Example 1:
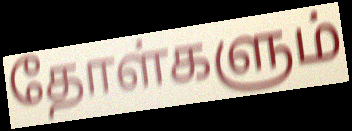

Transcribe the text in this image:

தோள்களும்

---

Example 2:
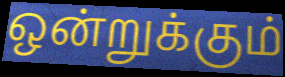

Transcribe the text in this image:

ஒன்றுக்கும்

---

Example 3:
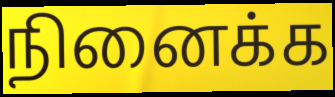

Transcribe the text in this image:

நினைக்க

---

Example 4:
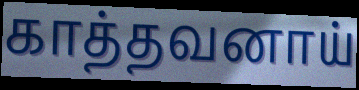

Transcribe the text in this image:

காத்தவனாய்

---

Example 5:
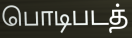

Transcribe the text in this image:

பொடிபடத்